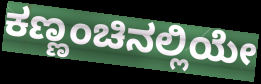
ಕಣ್ಣಂಚಿನಲ್ಲಿಯೇ